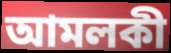
আমলকী